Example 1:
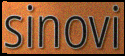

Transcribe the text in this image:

sinovi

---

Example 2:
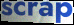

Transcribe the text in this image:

scrap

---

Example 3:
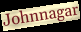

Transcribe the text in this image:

Johnnagar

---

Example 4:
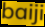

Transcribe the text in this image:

baiji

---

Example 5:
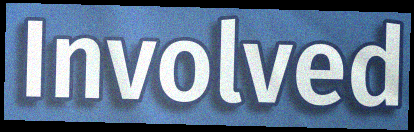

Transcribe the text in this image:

Involved